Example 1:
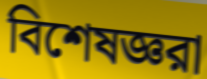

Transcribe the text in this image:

বিশেষজ্ঞরা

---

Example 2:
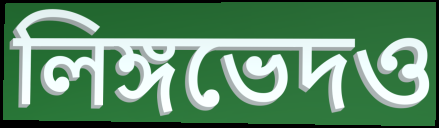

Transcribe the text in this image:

লিঙ্গভেদও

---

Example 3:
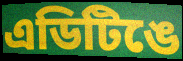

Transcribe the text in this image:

এডিটিঙে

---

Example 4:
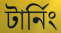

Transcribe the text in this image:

টার্নিং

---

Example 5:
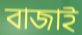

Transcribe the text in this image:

বাজাই